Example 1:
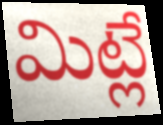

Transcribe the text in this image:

మిట్లే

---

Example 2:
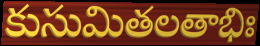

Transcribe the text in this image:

కుసుమితలతాభిః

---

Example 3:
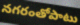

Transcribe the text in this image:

నగరంతోపాటు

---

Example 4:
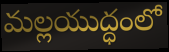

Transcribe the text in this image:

మల్లయుద్ధంలో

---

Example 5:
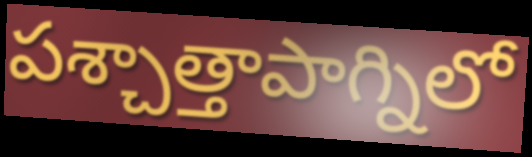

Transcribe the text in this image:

పశ్చాత్తాపాగ్నిలో